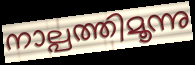
നാല്പത്തിമൂന്നു